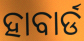
ହାବାର୍ଡ